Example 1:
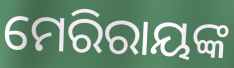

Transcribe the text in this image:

ମେରିରାୟଙ୍କ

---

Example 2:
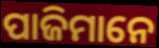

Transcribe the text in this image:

ପାଜିମାନେ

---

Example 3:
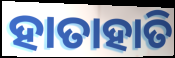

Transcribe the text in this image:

ହାତାହାତି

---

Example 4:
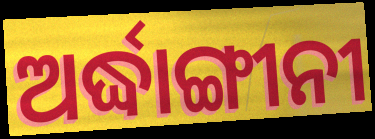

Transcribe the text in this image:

ଅର୍ଦ୍ଧାଙ୍ଗୀନୀ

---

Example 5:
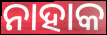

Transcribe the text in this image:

ନାହାକ